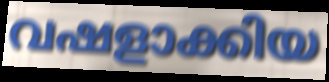
വഷളാക്കിയ